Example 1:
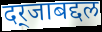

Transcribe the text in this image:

दर्जाबद्दल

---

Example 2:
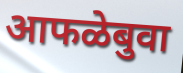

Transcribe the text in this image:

आफळेबुवा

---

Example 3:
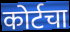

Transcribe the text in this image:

कोर्टचा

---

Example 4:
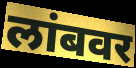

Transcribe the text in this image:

लांबवर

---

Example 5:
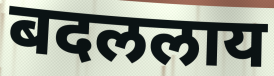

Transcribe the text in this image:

बदललाय